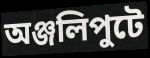
অঞ্জলিপুটে